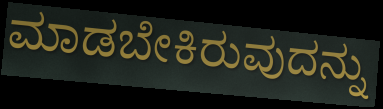
ಮಾಡಬೇಕಿರುವುದನ್ನು